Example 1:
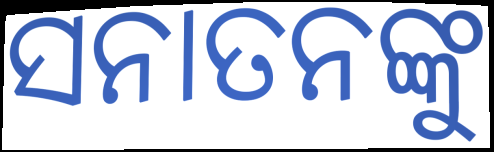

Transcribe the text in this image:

ସନାତନଙ୍କୁ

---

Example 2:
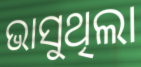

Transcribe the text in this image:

ଭାସୁଥିଲା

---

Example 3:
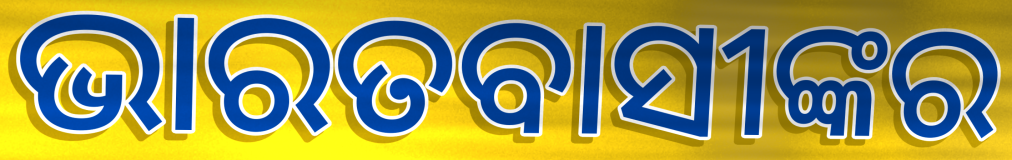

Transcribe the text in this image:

ଭାରତବାସୀଙ୍କର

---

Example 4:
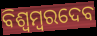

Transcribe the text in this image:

ବିଶ୍ୱମ୍ବରଦେବ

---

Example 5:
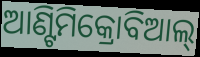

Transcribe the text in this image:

ଆଣ୍ଟିମିକ୍ରୋବିଆଲ୍